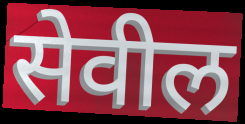
सेवील